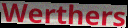
Werthers